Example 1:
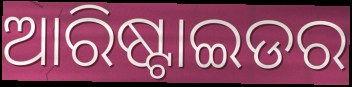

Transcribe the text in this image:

ଆରିଷ୍ଟାଇଡର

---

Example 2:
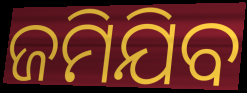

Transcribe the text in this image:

ଜମିଯିବ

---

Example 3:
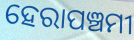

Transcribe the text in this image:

ହେରାପଞ୍ଚମୀ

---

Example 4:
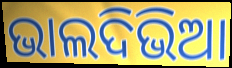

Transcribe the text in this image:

ଭାଲଦିଭିଆ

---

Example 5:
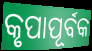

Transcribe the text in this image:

କୃପାପୂର୍ବକ